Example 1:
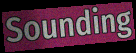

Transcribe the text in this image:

Sounding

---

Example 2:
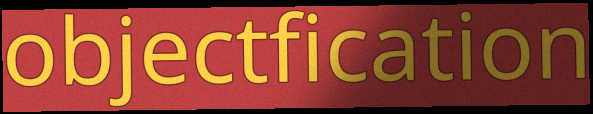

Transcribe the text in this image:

objectfication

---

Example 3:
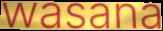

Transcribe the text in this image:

wasana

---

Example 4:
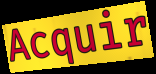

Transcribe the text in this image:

Acquir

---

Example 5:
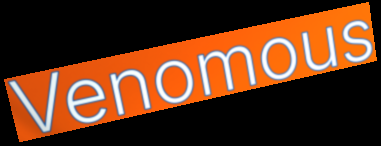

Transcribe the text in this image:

Venomous